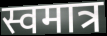
स्वमात्र